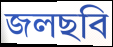
জলছবি